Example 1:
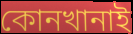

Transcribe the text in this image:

কোনখানাই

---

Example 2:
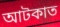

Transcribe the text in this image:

আটকাত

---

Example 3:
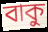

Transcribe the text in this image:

বাকু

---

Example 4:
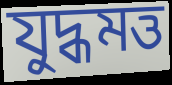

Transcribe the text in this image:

যুদ্ধমত্ত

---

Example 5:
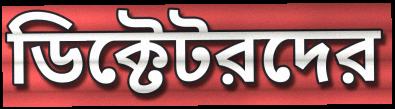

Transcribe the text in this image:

ডিক্টেটরদের